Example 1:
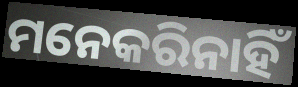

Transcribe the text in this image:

ମନେକରିନାହିଁ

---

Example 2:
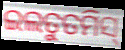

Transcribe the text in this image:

ଇଲତୁତମିସ୍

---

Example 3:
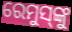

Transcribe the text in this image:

ରେମୁସ୍‌ଙ୍କୁ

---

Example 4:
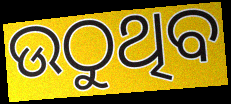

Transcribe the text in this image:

ଉଠୁଥିବ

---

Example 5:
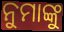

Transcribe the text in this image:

ନୁମାଙ୍କୁ